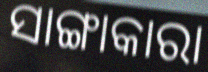
ସାଙ୍ଗାକାରା